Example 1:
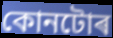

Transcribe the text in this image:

কোনটোৰ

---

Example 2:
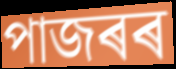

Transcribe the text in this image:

পাজৰৰ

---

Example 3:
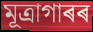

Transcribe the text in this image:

মূত্ৰাগাৰৰ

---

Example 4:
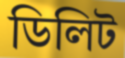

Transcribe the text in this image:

ডিলিট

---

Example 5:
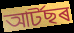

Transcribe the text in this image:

আৰ্টছৰ